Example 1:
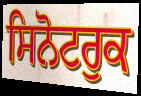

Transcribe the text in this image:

ਸਿਨੋਟਰੁਕ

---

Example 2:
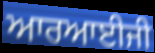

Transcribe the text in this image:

ਆਰਆਈਜੀ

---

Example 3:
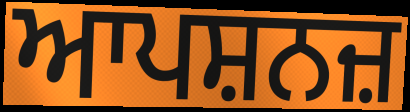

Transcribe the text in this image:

ਆਪਸ਼ਨਜ਼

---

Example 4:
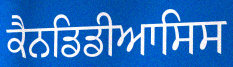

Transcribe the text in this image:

ਕੈਨਡਿਡੀਆਸਿਸ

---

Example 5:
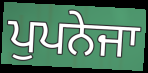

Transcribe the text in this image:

ਪੁਪਨੇਜਾ